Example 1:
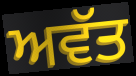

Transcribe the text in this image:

ਅਵੱਤ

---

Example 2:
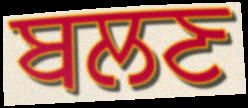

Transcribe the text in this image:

ਬਲਣ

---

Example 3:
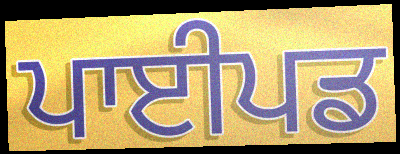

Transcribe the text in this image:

ਪਾਈਪਡ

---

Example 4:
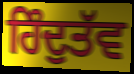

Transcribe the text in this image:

ਹਿੰਦੁਤੱਵ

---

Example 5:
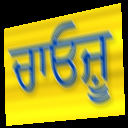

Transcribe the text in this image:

ਚਾਓਜ਼ੂ